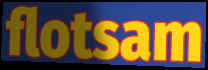
flotsam